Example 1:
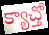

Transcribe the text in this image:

క్యాచ్తో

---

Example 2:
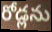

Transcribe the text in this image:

రోడ్లను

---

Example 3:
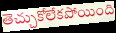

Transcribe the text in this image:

తెచ్చుకోలేకపోయింది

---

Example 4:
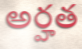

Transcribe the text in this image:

అర్హత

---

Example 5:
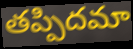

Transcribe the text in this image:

తప్పిదమా